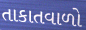
તાકાતવાળો